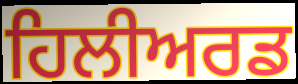
ਹਿਲੀਅਰਡ